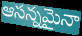
ఆసన్నమైనా